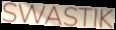
SWASTIK